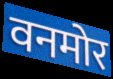
वनमोर